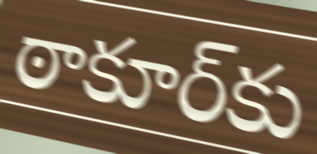
ఠాకూర్‌కు